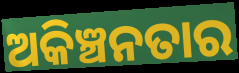
ଅକିଞ୍ଚନତାର